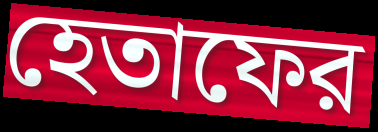
হেতাফের